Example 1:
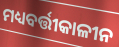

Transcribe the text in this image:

ମଧ୍ୟବର୍ତ୍ତୀକାଳୀନ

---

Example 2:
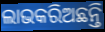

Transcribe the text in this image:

ଲାଭକରିଅଛନ୍ତି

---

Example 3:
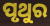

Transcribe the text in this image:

ପୃଥୁର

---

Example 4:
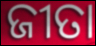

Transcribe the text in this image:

ଜୀତା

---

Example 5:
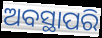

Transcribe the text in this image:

ଅବସ୍ଥାପରି